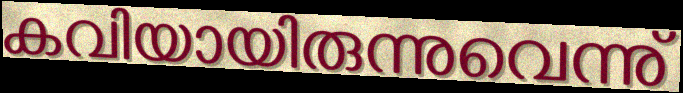
കവിയായിരുന്നുവെന്നു്